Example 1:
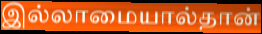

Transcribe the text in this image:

இல்லாமையால்தான்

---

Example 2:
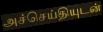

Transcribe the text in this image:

அச்செய்தியுடன்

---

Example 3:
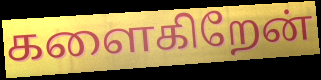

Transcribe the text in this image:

களைகிறேன்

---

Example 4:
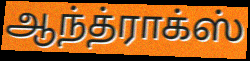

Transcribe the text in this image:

ஆந்த்ராக்ஸ்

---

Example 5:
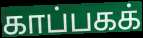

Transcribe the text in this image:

காப்பகக்